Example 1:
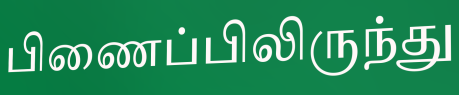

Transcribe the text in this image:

பிணைப்பிலிருந்து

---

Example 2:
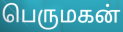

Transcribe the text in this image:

பெருமகன்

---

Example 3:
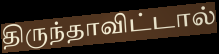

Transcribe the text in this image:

திருந்தாவிட்டால்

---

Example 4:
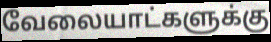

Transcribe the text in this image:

வேலையாட்களுக்கு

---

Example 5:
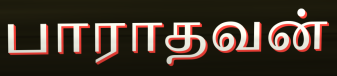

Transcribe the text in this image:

பாராதவன்